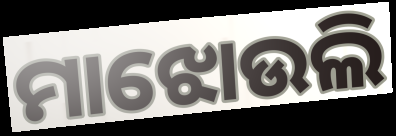
ମାଝୋଉଲି